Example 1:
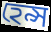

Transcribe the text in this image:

হেন্স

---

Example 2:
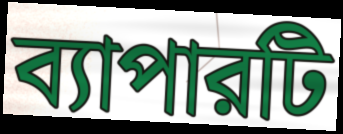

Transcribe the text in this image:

ব্যাপারটি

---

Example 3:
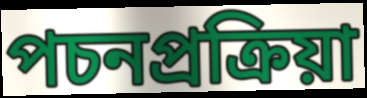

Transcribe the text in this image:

পচনপ্রক্রিয়া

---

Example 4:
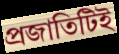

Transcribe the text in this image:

প্রজাতিটিই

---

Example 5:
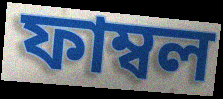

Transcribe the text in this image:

ফাম্বল